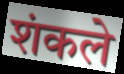
शंकले